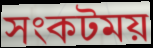
সংকটময়